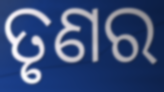
ତୃଣର